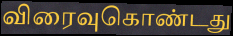
விரைவுகொண்டது